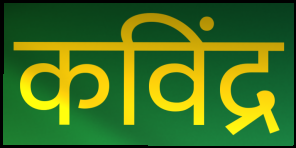
कविंद्र